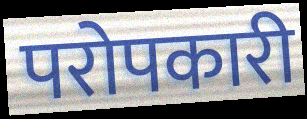
परोपकारी